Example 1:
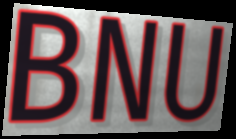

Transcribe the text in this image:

BNU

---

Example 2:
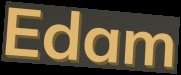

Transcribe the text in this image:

Edam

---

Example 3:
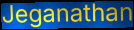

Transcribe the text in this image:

Jeganathan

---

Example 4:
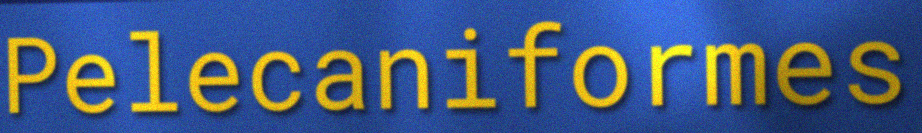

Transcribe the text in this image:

Pelecaniformes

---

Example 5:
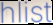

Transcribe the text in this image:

hlist